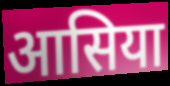
आसिया